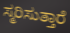
ಸ್ಮರಿಸುತ್ತಾರೆ